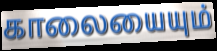
காலையையும்